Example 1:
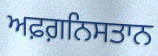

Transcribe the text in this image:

ਅਫ਼ਗ਼ਨਿਸਤਾਨ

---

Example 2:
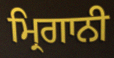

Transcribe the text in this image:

ਮ੍ਰਿਗਾਨੀ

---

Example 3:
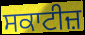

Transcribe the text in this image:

ਸਕਾਟੀਜ਼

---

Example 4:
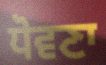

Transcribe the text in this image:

ਧੋਵਣਾ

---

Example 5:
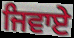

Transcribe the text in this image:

ਜਿਵਾਏ